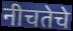
नीचतेचे